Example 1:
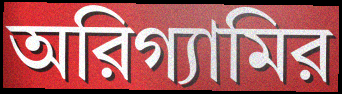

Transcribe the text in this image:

অরিগ্যামির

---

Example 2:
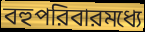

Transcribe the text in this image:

বহুপরিবারমধ্যে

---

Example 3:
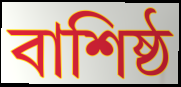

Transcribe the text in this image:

বাশিষ্ঠ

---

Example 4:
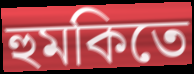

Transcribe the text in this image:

হুমকিতে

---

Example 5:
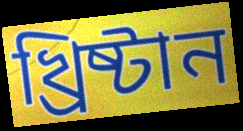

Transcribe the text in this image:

খ্রিষ্টান